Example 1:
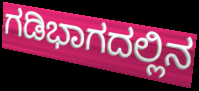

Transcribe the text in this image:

ಗಡಿಭಾಗದಲ್ಲಿನ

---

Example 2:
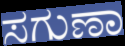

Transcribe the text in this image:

ಸಗುಣಾ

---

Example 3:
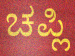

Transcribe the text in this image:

ಚಪ್ಲಿ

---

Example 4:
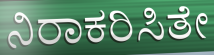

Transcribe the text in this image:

ನಿರಾಕರಿಸಿತೇ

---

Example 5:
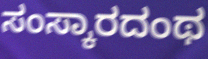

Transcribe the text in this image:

ಸಂಸ್ಕಾರದಂಥ